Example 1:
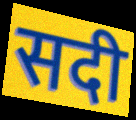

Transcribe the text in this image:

सदी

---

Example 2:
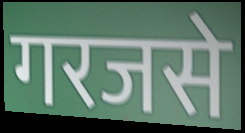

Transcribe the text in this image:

गरजसे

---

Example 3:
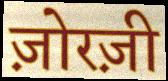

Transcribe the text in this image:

ज़ोरज़ी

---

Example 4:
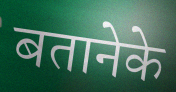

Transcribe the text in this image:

बतानेके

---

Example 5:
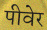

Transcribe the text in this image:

पीवेर